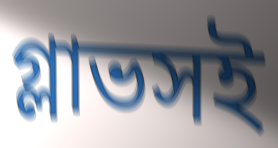
গ্লাভসই